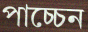
পাচ্চেন